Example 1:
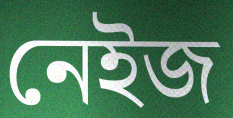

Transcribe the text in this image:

নেইজ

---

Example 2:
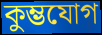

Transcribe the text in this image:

কুম্ভযোগ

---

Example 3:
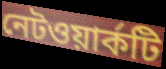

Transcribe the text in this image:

নেটওয়ার্কটি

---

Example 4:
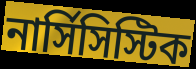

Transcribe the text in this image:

নার্সিসিস্টিক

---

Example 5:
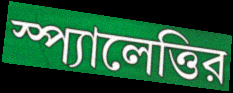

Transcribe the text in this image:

স্প্যালেত্তির